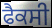
ਫੈਕਸੀ